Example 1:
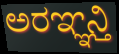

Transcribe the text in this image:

ಅರಞ್ಞನ್ತಿ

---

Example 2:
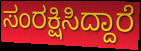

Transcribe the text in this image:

ಸಂರಕ್ಷಿಸಿದ್ದಾರೆ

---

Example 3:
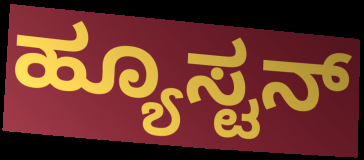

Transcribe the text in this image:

ಹ್ಯೂಸ್ಟನ್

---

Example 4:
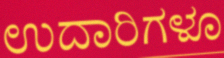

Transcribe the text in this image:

ಉದಾರಿಗಳೂ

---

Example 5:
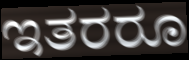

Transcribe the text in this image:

ಇತರರೂ